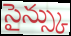
సైన్స్కు